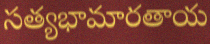
సత్యభామారతాయ